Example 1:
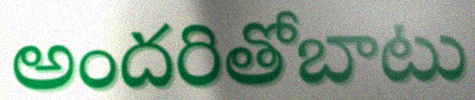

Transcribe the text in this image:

అందరితోబాటు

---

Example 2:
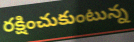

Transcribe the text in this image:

రక్షించుకుంటున్న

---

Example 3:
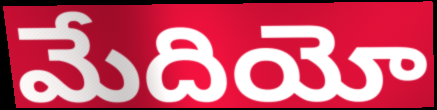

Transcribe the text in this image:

మేదియో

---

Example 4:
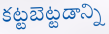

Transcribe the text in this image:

కట్టబెట్టడాన్ని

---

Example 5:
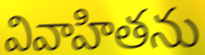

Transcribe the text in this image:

వివాహితను